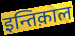
इन्तिक़ाल